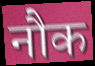
नौक